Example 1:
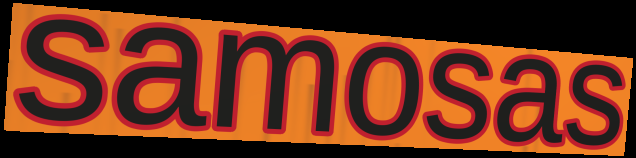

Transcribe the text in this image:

samosas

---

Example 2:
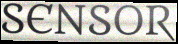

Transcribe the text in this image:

SENSOR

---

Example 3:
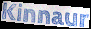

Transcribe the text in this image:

Kinnaur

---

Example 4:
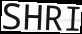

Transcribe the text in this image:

SHRI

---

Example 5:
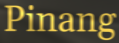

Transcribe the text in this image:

Pinang